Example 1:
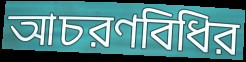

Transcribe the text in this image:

আচরণবিধির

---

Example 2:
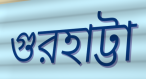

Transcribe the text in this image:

গুরহাট্টা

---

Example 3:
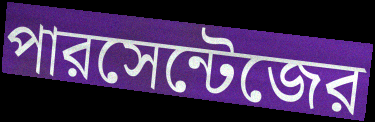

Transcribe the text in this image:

পারসেন্টেজের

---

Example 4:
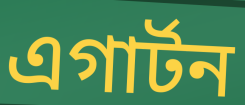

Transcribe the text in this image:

এগার্টন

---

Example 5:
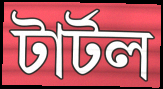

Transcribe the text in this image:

টার্টল